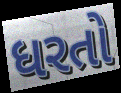
ધરતો